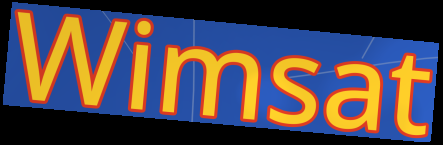
Wimsat